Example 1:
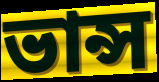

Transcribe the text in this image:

ভান্স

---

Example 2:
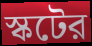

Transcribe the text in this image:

স্কটের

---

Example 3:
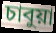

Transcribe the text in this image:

চাবুয়া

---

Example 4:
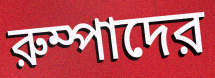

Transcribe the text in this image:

রুম্পাদের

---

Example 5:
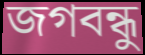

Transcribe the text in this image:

জগবন্ধু